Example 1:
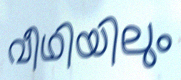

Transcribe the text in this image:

വീഥിയിലും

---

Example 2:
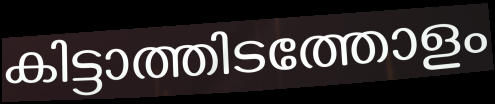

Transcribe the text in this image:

കിട്ടാത്തിടത്തോളം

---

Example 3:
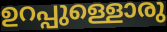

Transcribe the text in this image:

ഉറപ്പുള്ളൊരു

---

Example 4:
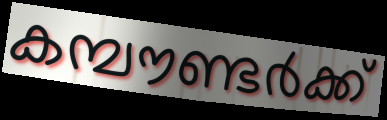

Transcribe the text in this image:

കമ്പൗണ്ടർക്ക്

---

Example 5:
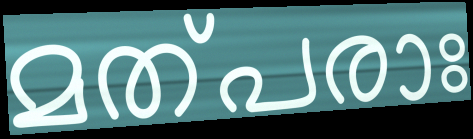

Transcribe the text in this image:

മത്പരാഃ